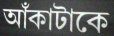
আঁকাটাকে